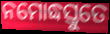
ନମୋଦ୍ଧସ୍ତୁତେ